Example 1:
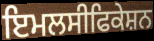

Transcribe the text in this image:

ਇਮਲਸੀਫਿਕੇਸ਼ਨ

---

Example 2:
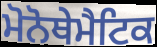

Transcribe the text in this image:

ਮੋਨੋਥੇਮੈਟਿਕ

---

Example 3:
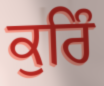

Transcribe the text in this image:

ਕੁਰਿੰ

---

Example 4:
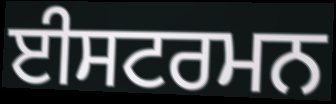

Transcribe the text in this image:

ਈਸਟਰਮਨ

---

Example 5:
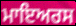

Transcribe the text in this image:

ਮਾਇਅਰਸ